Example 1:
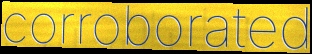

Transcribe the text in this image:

corroborated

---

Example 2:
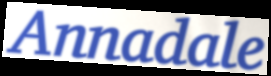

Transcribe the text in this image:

Annadale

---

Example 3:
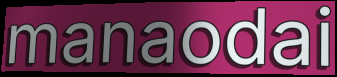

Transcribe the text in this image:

manaodai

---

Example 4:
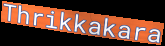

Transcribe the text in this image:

Thrikkakara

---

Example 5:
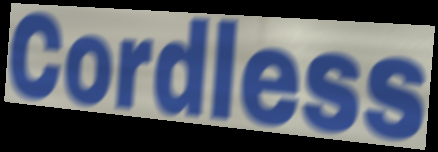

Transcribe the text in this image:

Cordless